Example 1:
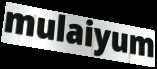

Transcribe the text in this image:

mulaiyum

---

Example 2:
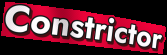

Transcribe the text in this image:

Constrictor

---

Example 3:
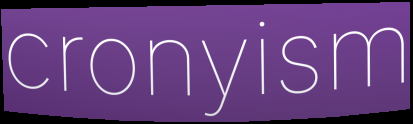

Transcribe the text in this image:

cronyism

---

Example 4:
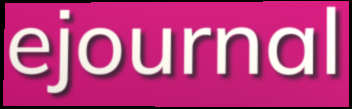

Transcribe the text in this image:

ejournal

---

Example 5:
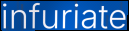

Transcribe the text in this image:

infuriate